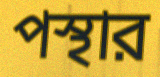
পস্থার